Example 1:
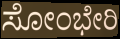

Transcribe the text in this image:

ಸೋಂಭೇರಿ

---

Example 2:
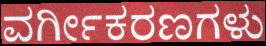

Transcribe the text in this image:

ವರ್ಗೀಕರಣಗಳು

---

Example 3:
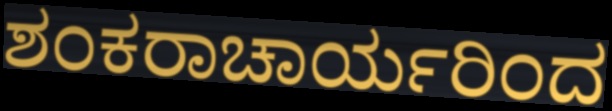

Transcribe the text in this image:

ಶಂಕರಾಚಾರ್ಯರಿಂದ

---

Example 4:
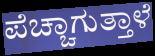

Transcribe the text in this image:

ಪೆಚ್ಚಾಗುತ್ತಾಳೆ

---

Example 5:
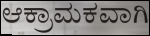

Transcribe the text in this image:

ಆಕ್ರಾಮಕವಾಗಿ